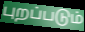
புறப்படும்